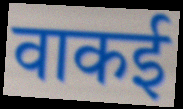
वाकई